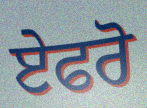
ਏਫਰੋ